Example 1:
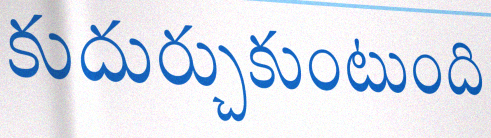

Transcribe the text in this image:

కుదుర్చుకుంటుంది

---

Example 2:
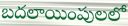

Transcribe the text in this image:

బదలాయింపులలో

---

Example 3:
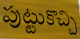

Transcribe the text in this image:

పుట్టుకొచ్చి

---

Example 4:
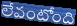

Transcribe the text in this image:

లేవంటోంది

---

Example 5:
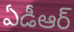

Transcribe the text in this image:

ఏడీఆర్